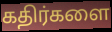
கதிர்களை